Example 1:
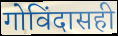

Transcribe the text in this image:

गोविंदासही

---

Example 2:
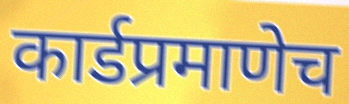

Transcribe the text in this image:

कार्डप्रमाणेच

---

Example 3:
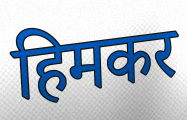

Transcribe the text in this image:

हिमकर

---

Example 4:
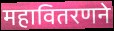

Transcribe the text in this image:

महावितरणने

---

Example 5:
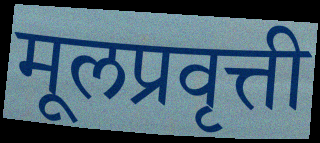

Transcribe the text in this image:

मूलप्रवृत्ती